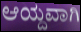
ಆಯ್ದವಾಗಿ